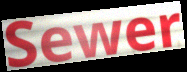
Sewer